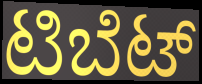
ಟಿಬೆಟ್